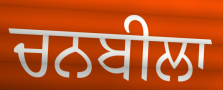
ਚਨਬੀਲਾ